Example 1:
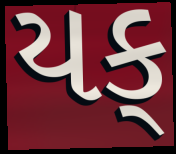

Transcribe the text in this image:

યક્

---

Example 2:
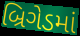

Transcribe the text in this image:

બ્રિગેડમાં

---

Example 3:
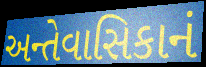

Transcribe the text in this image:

અન્તેવાસિકાનં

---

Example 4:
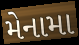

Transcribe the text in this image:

મેનામા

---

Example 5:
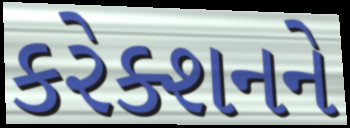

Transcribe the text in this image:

કરેક્શનને